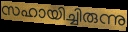
സഹായിച്ചിരുന്നു